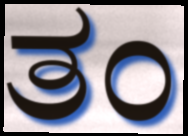
ತಂ